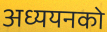
अध्ययनको